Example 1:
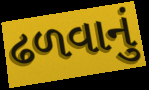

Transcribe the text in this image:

ઢળવાનું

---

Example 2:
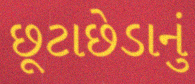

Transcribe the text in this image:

છૂટાછેડાનું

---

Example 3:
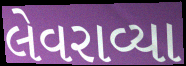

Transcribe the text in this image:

લેવરાવ્યા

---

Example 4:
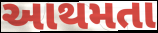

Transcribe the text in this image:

આથમતા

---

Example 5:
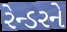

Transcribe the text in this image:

રેન્ડરને